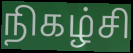
நிகழ்சி